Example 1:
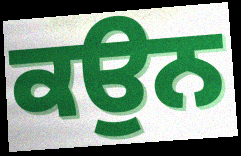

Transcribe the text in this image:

ਕਉਨ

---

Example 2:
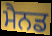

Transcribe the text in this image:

ਮੈਨਡ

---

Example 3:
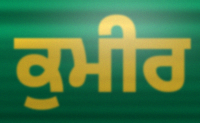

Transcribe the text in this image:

ਕੁਮੀਰ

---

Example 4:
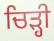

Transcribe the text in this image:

ਚਿੜ੍ਹੀ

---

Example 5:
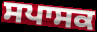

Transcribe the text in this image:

ਸਪਾਸਕ